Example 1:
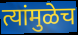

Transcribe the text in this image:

त्यांमुळेच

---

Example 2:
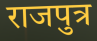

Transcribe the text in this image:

राजपुत्र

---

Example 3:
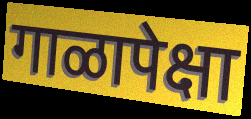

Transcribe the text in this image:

गाळापेक्षा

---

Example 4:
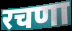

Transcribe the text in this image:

रचणा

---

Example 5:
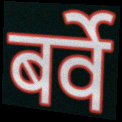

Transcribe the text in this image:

बर्वे